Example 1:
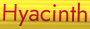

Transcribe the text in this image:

Hyacinth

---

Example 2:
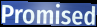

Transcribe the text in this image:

Promised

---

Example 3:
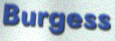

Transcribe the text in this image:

Burgess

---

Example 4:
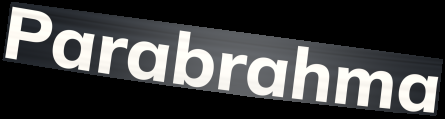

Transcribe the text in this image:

Parabrahma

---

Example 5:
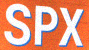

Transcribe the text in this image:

SPX